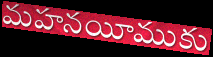
మహనయీముకు